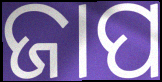
ଜାପ